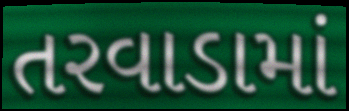
તરવાડામાં